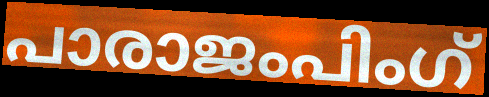
പാരാജംപിംഗ്